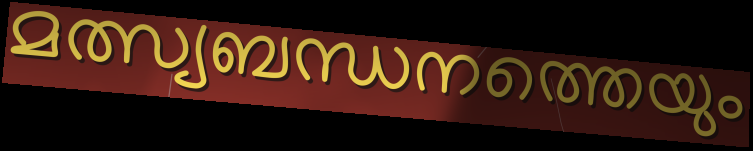
മത്സ്യബന്ധനത്തെയും